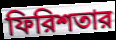
ফিরিশতার